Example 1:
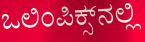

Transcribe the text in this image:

ಒಲಿಂಪಿಕ್ಸ್‌ನಲ್ಲಿ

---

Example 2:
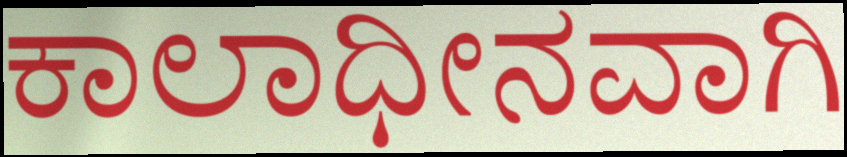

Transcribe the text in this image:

ಕಾಲಾಧೀನವಾಗಿ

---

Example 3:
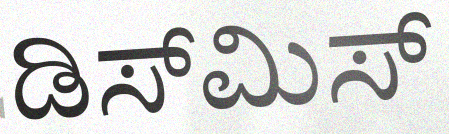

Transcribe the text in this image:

ಡಿಸ್‌ಮಿಸ್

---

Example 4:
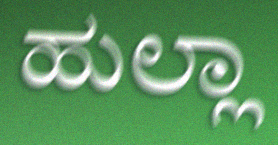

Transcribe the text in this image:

ಹುಲ್ಲಾ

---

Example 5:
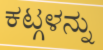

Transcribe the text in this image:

ಕಟ್ಗಳನ್ನು